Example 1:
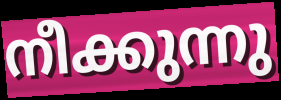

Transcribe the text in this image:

നീക്കുന്നു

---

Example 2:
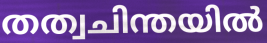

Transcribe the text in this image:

തത്വചിന്തയിൽ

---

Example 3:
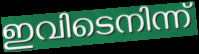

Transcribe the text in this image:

ഇവിടെനിന്ന്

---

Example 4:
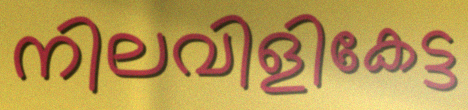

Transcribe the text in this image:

നിലവിളികേട്ട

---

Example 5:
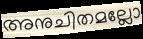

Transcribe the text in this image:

അനുചിതമല്ലോ